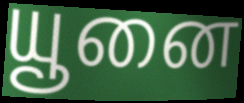
யூனை